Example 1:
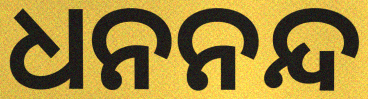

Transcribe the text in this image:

ଧନନନ୍ଦ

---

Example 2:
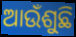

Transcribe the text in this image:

ଆଉଁଶୁଛି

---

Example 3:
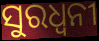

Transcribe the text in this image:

ସୁରଧ୍ୱନୀ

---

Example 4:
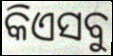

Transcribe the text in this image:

କିଏସବୁ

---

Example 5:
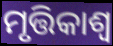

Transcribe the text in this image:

ମୃତ୍ତିକାଶ୍ୱ